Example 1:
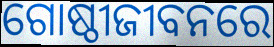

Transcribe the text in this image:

ଗୋଷ୍ଠୀଜୀବନରେ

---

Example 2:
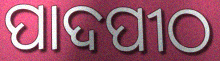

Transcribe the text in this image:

ପାଦପୀଠ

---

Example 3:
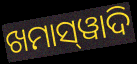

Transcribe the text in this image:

ଖମାସ୍‌ୱାଦି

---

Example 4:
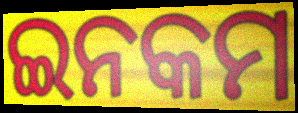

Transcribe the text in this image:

ଇନକମ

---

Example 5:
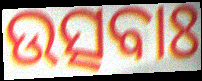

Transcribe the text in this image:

ଉତ୍ସବାଃ